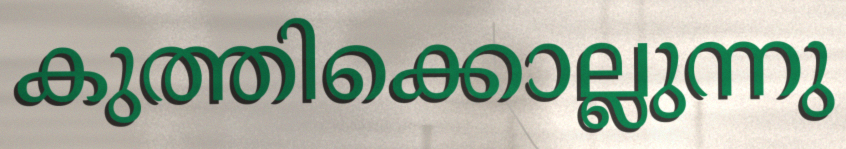
കുത്തിക്കൊല്ലുന്നു